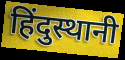
हिंदुस्थानी